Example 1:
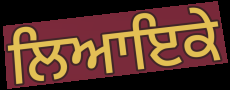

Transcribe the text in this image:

ਲਿਆਇਕੇ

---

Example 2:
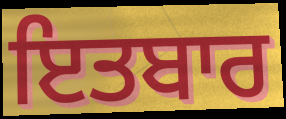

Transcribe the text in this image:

ਇਤਬਾਰ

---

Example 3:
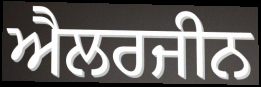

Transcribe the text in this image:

ਐਲਰਜੀਨ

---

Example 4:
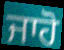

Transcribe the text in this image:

ਜਾਹੋ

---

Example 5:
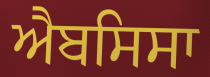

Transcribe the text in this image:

ਐਬਸਿਸਾ